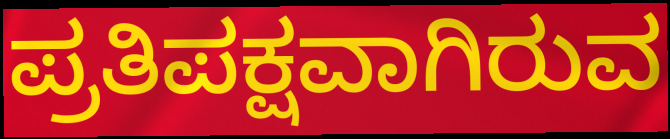
ಪ್ರತಿಪಕ್ಷವಾಗಿರುವ